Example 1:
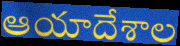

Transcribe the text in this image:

ఆయాదేశాల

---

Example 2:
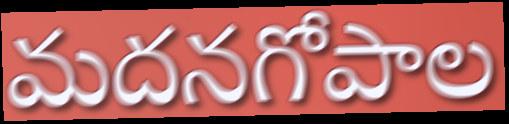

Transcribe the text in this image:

మదనగోపాల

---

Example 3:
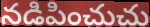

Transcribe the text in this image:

నడిపించుచు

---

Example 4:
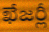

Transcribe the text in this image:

ఖేజర్లీ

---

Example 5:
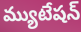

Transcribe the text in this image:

మ్యుటేషన్